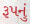
રૂપનું